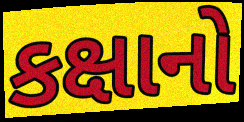
કક્ષાનો